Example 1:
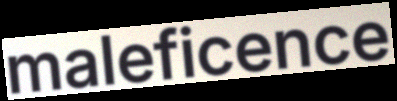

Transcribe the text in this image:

maleficence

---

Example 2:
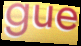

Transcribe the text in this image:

gue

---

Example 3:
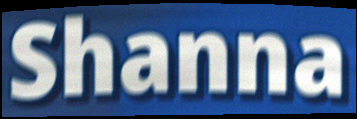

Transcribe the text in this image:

Shanna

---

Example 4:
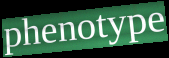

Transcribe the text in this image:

phenotype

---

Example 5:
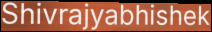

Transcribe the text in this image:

Shivrajyabhishek